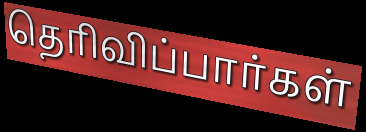
தெரிவிப்பார்கள்